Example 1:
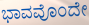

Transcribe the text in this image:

ಭಾವವೊಂದೇ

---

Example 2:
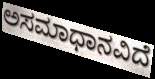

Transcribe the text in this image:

ಅಸಮಾಧಾನವಿದೆ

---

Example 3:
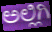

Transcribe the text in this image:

ಅಲ್ಲಿಗಿ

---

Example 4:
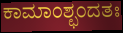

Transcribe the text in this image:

ಕಾಮಾಂಶ್ಛಂದತಃ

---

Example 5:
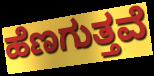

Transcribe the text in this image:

ಹೆಣಗುತ್ತವೆ